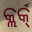
କ୍ଲର୍କ୍